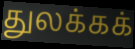
துலக்கக்